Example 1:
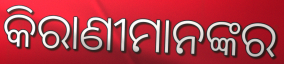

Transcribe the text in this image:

କିରାଣୀମାନଙ୍କର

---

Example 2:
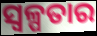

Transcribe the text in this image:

ସ୍ଵଳ୍ପତାର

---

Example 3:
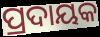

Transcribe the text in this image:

ପ୍ରଦାୟକ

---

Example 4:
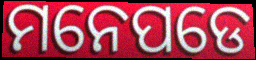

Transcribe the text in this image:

ମନେପଡେ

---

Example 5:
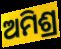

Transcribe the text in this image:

ଅମିଶ୍ର